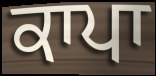
ਕਾਪਾ